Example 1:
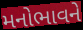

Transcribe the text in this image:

મનોભાવને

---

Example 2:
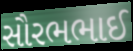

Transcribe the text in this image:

સૌરભભાઈ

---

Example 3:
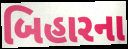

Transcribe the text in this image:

બિહારના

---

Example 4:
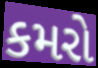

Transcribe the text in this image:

કમરો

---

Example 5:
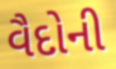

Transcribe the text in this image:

વૈદોની